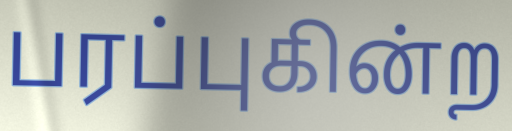
பரப்புகின்ற